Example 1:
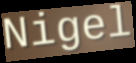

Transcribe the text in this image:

Nigel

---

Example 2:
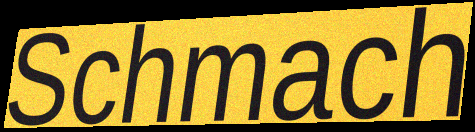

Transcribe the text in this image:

Schmach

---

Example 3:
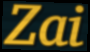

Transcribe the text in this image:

Zai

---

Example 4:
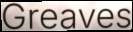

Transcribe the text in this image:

Greaves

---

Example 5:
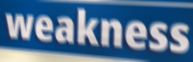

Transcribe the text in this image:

weakness